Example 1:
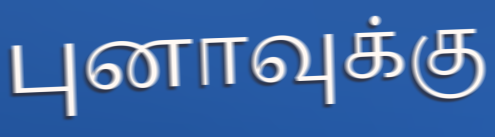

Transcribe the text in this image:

புனாவுக்கு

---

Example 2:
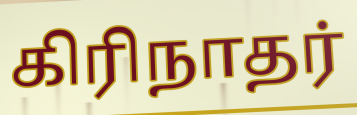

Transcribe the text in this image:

கிரிநாதர்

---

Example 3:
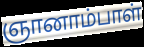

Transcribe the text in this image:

ஞானாம்பாள்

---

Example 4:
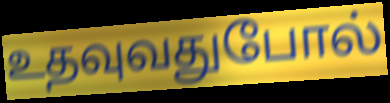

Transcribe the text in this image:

உதவுவதுபோல்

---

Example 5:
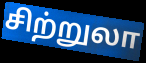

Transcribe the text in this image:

சிற்றுலா